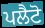
ਪਲੈਟੋ